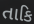
તાકિ